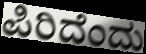
ಪಿರಿದೆಂದು